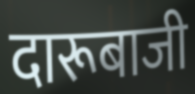
दारूबाजी